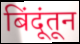
बिंदूंतून